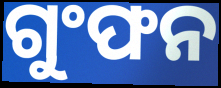
ଗୁଂଫନ